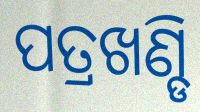
ପତ୍ରଖଣ୍ଡି